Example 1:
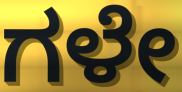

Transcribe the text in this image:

ಗಳೇ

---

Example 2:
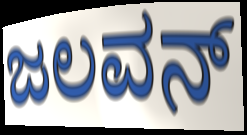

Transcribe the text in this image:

ಜಲವನ್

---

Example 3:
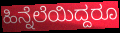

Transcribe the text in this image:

ಹಿನ್ನೆಲೆಯಿದ್ದರೂ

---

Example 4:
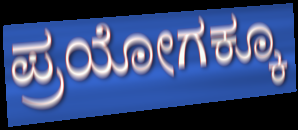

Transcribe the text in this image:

ಪ್ರಯೋಗಕ್ಕೂ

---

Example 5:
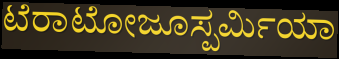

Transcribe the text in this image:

ಟೆರಾಟೋಜೂಸ್ಪರ್ಮಿಯಾ